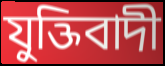
যুক্তিবাদী